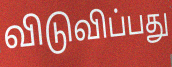
விடுவிப்பது